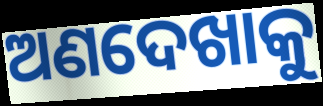
ଅଣଦେଖାକୁ